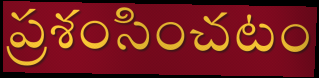
ప్రశంసించటం